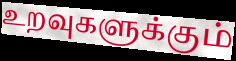
உறவுகளுக்கும்